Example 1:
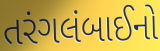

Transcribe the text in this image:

તરંગલંબાઈનો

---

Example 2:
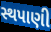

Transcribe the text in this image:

સ્થપાણી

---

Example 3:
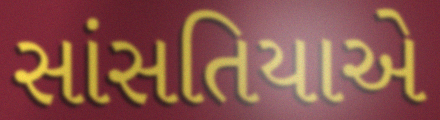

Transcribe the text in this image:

સાંસતિયાએ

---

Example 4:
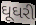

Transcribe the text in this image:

ઘૂઘરી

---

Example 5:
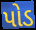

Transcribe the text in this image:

પોડ